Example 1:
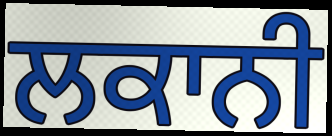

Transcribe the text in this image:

ਲਕਾਨੀ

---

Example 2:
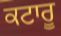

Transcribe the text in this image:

ਕਟਾਰੂ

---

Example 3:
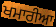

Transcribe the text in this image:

ਖਮਾਰੀਆ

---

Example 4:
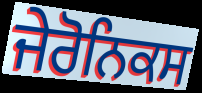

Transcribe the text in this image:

ਜੇਰੋਨਿਕਸ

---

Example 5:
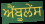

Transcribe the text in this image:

ਐਂਬੂਲੇਂਸ